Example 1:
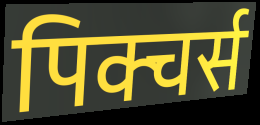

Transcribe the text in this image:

पिक्चर्स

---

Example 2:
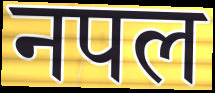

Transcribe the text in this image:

नपल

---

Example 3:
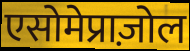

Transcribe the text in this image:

एसोमेप्राज़ोल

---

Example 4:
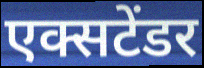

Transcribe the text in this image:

एक्सटेंडर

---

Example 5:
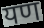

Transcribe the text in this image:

यण